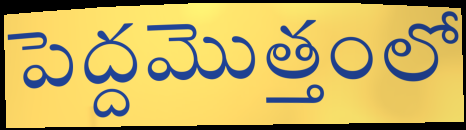
పెద్దమొత్తంలో